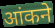
आंकने